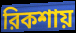
রিকশায়